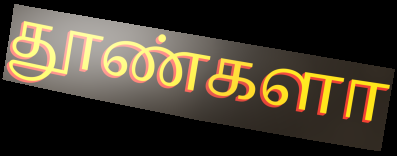
தூண்களா